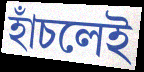
হাঁচলেই